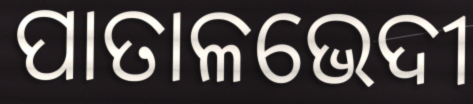
ପାତାଳଭେଦୀ